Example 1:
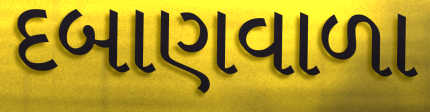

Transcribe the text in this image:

દબાણવાળા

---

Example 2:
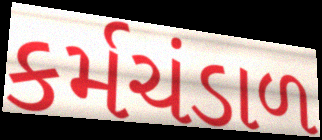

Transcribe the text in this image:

કર્મચંડાળ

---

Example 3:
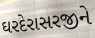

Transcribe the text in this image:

ઘરદેરાસરજીને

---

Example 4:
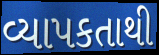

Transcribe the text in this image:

વ્યાપકતાથી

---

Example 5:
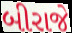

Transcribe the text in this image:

બીરાજે